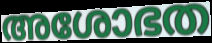
അശോഭത